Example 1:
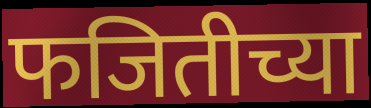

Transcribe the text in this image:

फजितीच्या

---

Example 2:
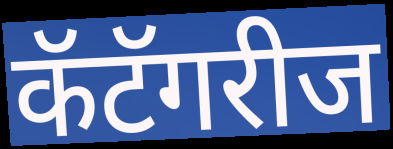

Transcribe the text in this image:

कॅटॅगरीज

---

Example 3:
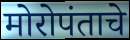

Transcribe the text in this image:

मोरोपंताचे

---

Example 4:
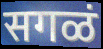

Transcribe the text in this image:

सगळं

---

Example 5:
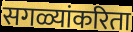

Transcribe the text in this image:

सगळ्यांकरिता